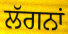
ਲੱਗਨਾਂ